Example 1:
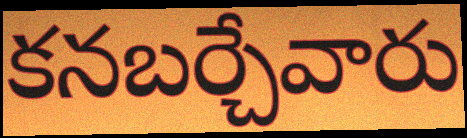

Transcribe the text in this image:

కనబర్చేవారు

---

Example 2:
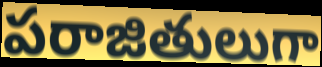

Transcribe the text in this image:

పరాజితులుగా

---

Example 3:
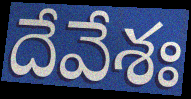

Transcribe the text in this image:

దేవేశః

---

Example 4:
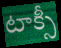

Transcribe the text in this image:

టాక్సీ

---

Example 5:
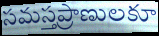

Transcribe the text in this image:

సమస్తప్రాణులకూ